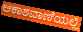
ಆಕಾಶವಾಣಿಯಲ್ಲಿ